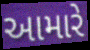
આમારે